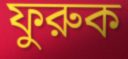
ফুরুক